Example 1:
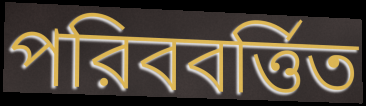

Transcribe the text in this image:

পরিববর্ত্তিত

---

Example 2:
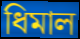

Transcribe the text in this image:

ধিমাল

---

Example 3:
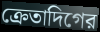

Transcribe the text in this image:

ক্রেতাদিগের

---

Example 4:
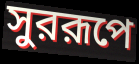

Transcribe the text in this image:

সুররূপে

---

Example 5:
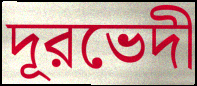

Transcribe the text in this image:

দূরভেদী